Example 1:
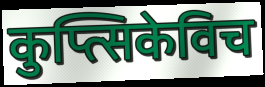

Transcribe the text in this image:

कुप्त्सिकेविच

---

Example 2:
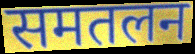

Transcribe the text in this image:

समतलन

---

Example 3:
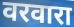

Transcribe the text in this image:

वरवारा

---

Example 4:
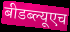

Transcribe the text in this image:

बीडब्ल्यूएच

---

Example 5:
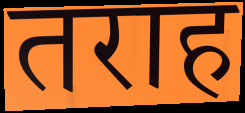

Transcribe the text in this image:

तराह